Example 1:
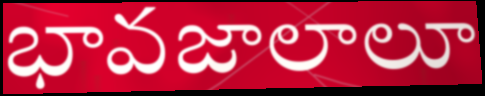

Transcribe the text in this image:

భావజాలాలూ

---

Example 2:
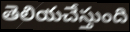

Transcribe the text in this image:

తెలియచేస్తుంది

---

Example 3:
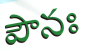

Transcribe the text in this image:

పౌనః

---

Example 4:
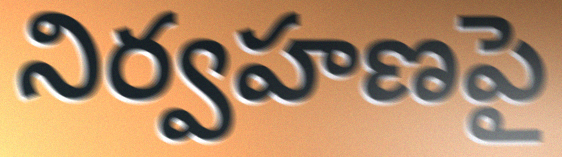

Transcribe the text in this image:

నిర్వహణపై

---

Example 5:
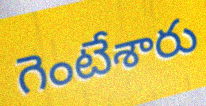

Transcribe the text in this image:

గెంటేశారు